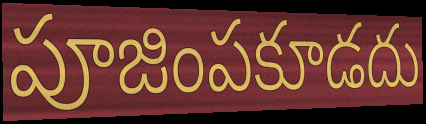
పూజింపకూడదు